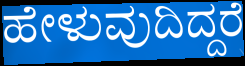
ಹೇಳುವುದಿದ್ದರೆ